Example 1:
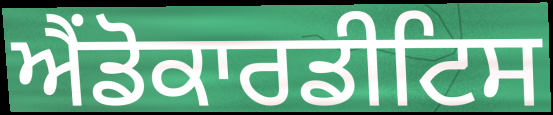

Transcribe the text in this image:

ਐਂਡੋਕਾਰਡੀਟਿਸ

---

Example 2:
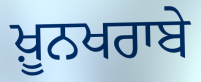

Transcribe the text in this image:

ਖ਼ੂਨਖਰਾਬੇ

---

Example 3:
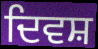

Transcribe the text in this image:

ਦਿਵਸ਼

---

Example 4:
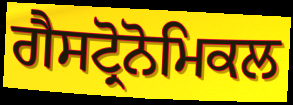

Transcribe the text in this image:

ਗੈਸਟ੍ਰੋਨੋਮਿਕਲ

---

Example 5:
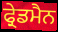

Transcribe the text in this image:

ਫ੍ਰੇਡਮੈਨ